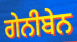
ਗੇਨੀਬੇਨ